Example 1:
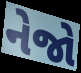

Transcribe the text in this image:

નેજો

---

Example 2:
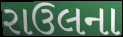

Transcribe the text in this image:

રાઉલના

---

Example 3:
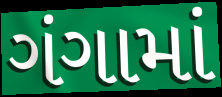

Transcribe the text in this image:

ગંગામાં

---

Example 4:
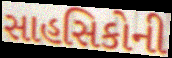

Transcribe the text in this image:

સાહસિકોની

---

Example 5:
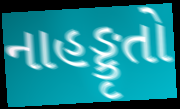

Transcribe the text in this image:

નાહઙ્કૃતો